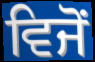
ਵਿਜੋਂ